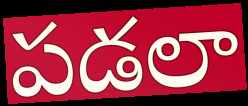
పడలా